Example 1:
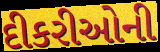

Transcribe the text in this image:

દીકરીઓની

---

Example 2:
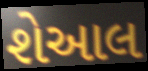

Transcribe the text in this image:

શેઆલ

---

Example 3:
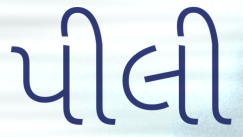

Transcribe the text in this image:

પીલી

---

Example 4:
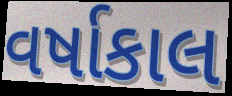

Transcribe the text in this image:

વર્ષાકાલ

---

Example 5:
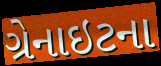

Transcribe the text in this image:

ગ્રેનાઇટના